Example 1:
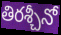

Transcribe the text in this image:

తిరశ్చీనో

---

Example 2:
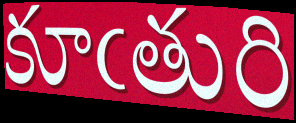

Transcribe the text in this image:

కూఁతురి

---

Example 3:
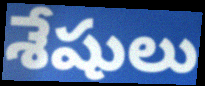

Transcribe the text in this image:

శేషులు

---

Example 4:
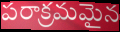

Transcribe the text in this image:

పరాక్రమమైన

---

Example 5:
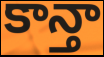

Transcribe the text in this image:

కాన్తా